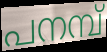
പനമ്പ്